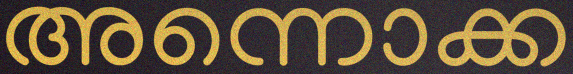
അന്നൊക്ക